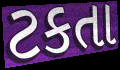
ટકતા